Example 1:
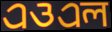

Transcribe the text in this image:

এওএল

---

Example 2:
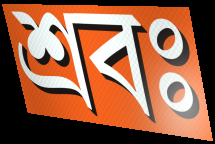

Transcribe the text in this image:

শ্রবঃ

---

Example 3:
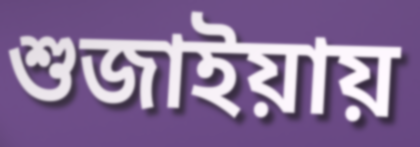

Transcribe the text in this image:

শুজাইয়ায়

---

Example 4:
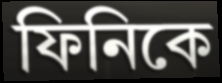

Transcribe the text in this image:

ফিনিকে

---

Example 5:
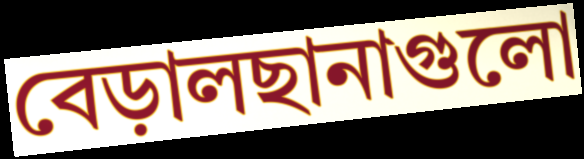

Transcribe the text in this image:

বেড়ালছানাগুলো